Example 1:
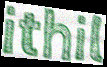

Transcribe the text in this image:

ithil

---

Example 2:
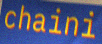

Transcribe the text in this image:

chaini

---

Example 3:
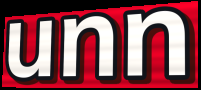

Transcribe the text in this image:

unn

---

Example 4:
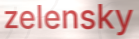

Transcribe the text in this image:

zelensky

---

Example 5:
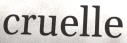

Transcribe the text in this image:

cruelle